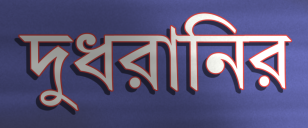
দুধরানির